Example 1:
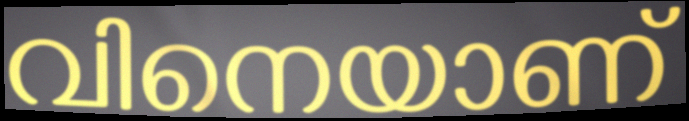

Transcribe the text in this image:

വിനെയാണ്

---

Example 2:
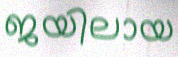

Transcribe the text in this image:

ജയിലായ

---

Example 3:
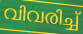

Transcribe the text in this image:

വിവരിച്ച്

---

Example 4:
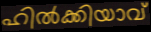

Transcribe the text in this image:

ഹിൽക്കിയാവ്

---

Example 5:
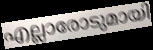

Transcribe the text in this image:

എല്ലാരോടുമായി